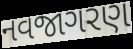
નવજાગરણ